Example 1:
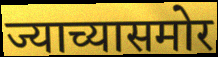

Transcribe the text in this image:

ज्याच्यासमोर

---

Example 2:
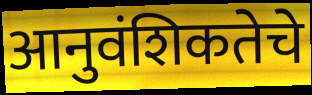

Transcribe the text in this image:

आनुवंशिकतेचे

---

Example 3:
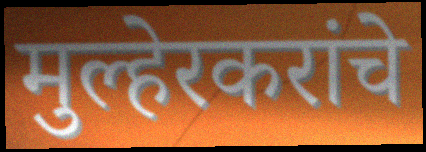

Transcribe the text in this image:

मुल्हेरकरांचे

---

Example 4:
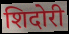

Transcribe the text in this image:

शिदोरी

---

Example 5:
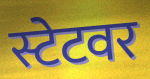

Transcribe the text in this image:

स्टेटवर